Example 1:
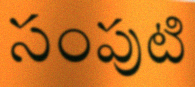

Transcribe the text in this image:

సంపుటి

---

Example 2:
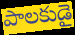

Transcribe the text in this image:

పాలకుడై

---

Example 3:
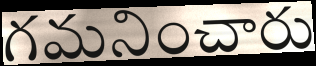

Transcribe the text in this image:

గమనించారు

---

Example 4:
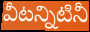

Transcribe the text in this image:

వీటన్నిటినీ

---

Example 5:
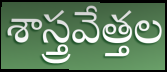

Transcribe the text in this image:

శాస్త్రవేత్తల